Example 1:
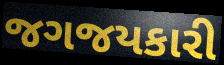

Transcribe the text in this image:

જગજયકારી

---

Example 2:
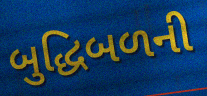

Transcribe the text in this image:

બુદ્ધિબળની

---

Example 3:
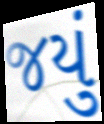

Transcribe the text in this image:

જયું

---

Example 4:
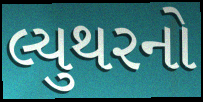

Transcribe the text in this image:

લ્યુથરનો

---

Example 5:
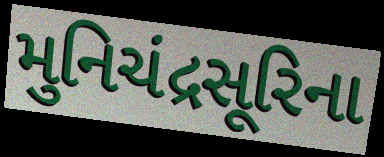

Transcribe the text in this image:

મુનિચંદ્રસૂરિના